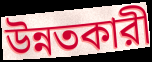
উন্নতকারী